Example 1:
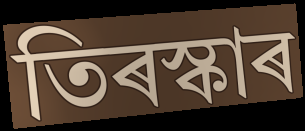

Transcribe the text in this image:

তিৰস্কাৰ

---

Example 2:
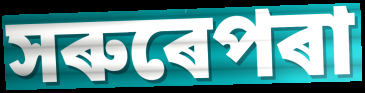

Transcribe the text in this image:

সৰুৰেপৰা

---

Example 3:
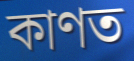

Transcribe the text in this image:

কাণত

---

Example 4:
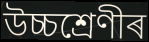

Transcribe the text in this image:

উচ্চশ্ৰেণীৰ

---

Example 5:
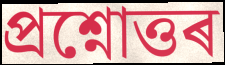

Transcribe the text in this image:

প্ৰশ্নোত্তৰ